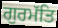
ਗੁਰਮੱਤਿ